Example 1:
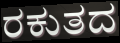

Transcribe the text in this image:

ರಕುತದ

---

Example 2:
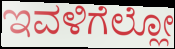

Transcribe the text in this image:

ಇವಳಿಗೆಲ್ಲೋ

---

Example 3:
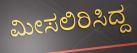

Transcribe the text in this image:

ಮೀಸಲಿರಿಸಿದ್ದ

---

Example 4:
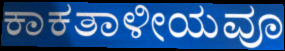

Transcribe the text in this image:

ಕಾಕತಾಳೀಯವೂ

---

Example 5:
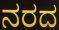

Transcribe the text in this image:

ನರದ